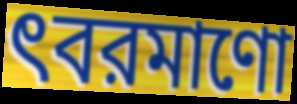
ৎবরমাণো